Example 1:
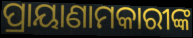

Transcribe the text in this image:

ପ୍ରାୟାଣାମକାରୀଙ୍କ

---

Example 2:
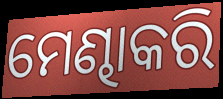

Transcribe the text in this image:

ମେଣ୍ଢାକରି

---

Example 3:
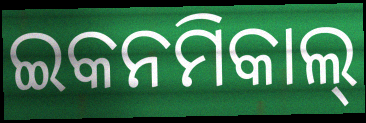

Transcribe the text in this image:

ଇକନମିକାଲ୍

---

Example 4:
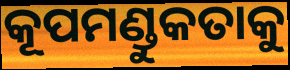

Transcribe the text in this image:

କୂପମଣ୍ଡୁକତାକୁ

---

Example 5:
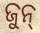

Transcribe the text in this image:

ଜୁନ୍